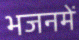
भजनमें